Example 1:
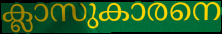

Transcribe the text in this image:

ക്ലാസുകാരനെ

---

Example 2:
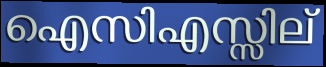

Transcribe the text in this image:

ഐസിഎസ്സില്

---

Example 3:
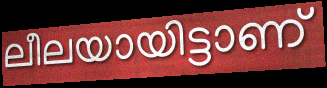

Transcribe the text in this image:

ലീലയായിട്ടാണ്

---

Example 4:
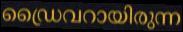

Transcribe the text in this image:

ഡ്രൈവറായിരുന്ന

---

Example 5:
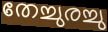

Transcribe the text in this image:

തേച്ചുരച്ചു